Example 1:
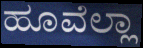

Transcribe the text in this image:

ಹೂವೆಲ್ಲಾ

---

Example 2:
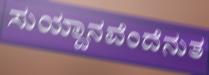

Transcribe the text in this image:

ಸುಯ್ದಾನವೆಂದೆನುತ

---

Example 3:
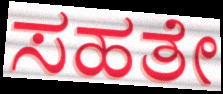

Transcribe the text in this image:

ಸಹತೇ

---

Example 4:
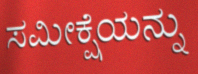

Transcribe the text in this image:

ಸಮೀಕ್ಷೆಯನ್ನು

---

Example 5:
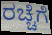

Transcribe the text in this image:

ರಚ್ಚೆಗೆ